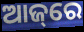
ଆଜ୍‌ରେ